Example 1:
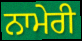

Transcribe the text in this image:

ਨਾਮੇਰੀ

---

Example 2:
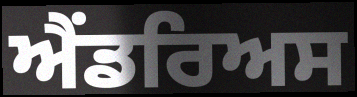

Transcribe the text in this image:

ਐਂਡਰਿਅਸ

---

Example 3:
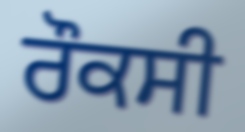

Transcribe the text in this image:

ਰੌਕਸੀ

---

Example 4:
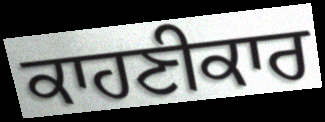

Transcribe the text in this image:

ਕਾਹਣੀਕਾਰ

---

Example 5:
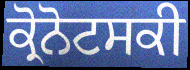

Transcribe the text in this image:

ਕ੍ਰੋਨੋਟਸਕੀ